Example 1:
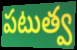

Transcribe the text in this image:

పటుత్వ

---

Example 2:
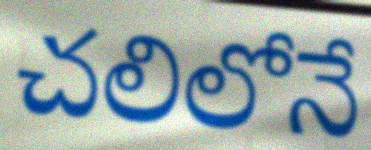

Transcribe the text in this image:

చలిలోనే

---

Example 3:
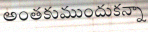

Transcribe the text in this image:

అంతకుముందుకన్నా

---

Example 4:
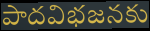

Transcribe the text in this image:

పాదవిభజనకు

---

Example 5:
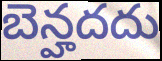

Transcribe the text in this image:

బెన్హదదు